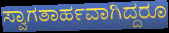
ಸ್ವಾಗತಾರ್ಹವಾಗಿದ್ದರೂ